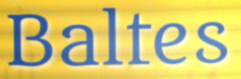
Baltes